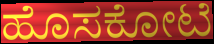
ಹೊಸಕೋಟೆ